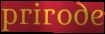
prirode